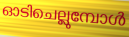
ഓടിചെല്ലുമ്പോൾ